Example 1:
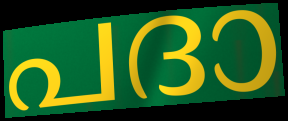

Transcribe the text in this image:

പദാ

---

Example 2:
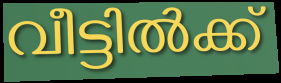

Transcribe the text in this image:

വീട്ടിൽക്ക്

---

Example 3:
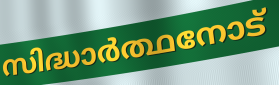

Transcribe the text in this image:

സിദ്ധാർത്ഥനോട്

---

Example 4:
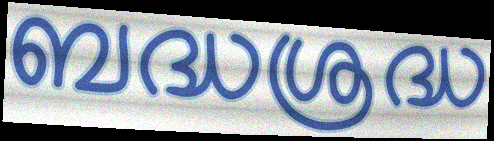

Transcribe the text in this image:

ബദ്ധശ്രദ്ധ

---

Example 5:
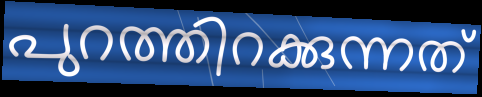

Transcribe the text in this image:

പുറത്തിറക്കുന്നത്